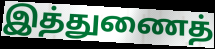
இத்துணைத்